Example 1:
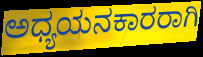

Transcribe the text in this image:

ಅಧ್ಯಯನಕಾರರಾಗಿ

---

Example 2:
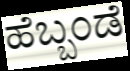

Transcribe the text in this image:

ಹೆಬ್ಬಂಡೆ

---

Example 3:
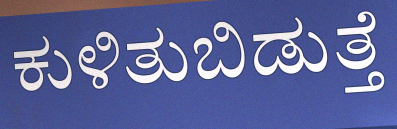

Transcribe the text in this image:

ಕುಳಿತುಬಿಡುತ್ತೆ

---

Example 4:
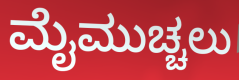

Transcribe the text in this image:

ಮೈಮುಚ್ಚಲು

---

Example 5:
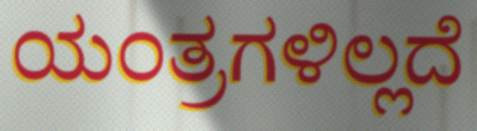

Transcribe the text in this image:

ಯಂತ್ರಗಳಿಲ್ಲದೆ